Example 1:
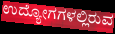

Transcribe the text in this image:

ಉದ್ಯೋಗಗಳಲ್ಲಿರುವ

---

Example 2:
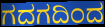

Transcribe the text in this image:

ಗದಗದಿಂದ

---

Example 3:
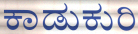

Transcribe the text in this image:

ಕಾಡುಕುರಿ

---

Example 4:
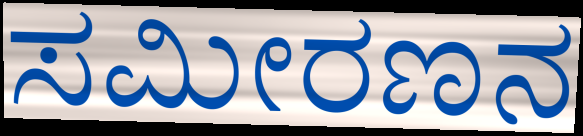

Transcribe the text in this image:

ಸಮೀರಣನ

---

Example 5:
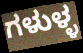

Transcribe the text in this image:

ಗಳುಳ್ಳ